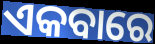
ଏକବାରେ